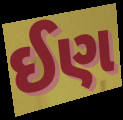
ઈણ